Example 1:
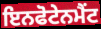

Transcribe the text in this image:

ਇਨਫੋਟੇਨਮੈਂਟ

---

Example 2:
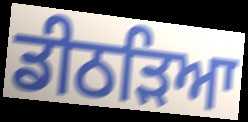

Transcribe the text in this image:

ਡੀਠੜਿਆ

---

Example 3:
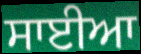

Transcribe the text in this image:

ਸਾਈਆ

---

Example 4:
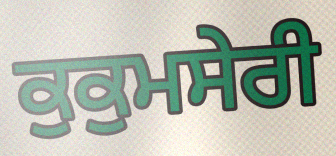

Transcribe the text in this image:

ਕੁਕੁਮਸੇਰੀ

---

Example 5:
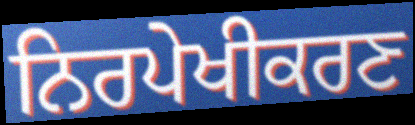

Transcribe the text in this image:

ਨਿਰਪੇਖੀਕਰਣ